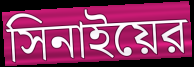
সিনাইয়ের